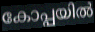
കോപ്പയിൽ